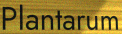
Plantarum